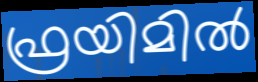
ഫ്രയിമിൽ